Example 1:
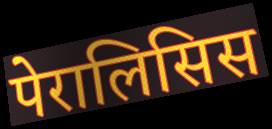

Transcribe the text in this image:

पेरालिसिस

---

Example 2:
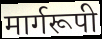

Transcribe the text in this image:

मार्गरूपी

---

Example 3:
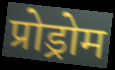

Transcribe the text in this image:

प्रोड्रोम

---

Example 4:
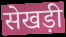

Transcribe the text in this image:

सेखड़ी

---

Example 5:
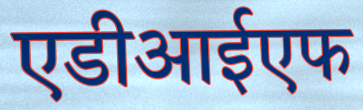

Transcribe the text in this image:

एडीआईएफ